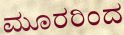
ಮೂರರಿಂದ